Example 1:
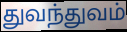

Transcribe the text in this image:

துவந்துவம்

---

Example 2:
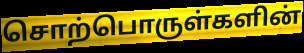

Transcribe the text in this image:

சொற்பொருள்களின்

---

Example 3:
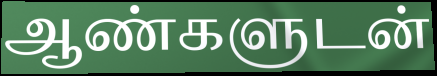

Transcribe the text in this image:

ஆண்களுடன்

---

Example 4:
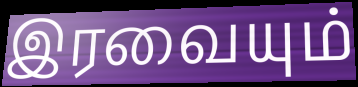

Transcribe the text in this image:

இரவையும்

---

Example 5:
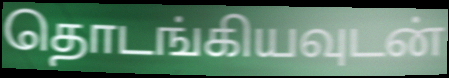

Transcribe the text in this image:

தொடங்கியவுடன்